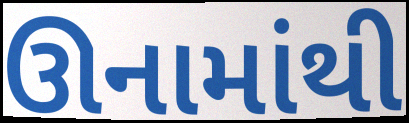
ઊનામાંથી